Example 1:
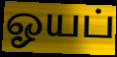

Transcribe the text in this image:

ஓயப்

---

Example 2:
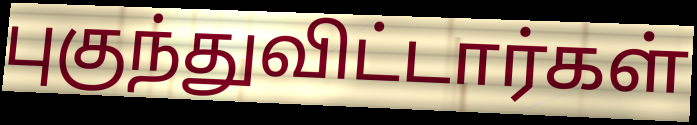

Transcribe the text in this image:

புகுந்துவிட்டார்கள்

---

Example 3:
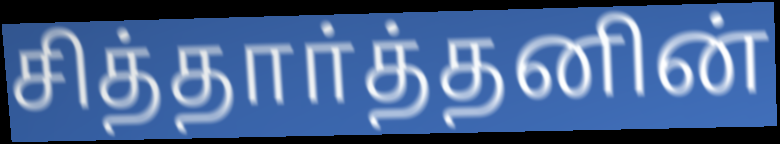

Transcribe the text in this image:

சித்தார்த்தனின்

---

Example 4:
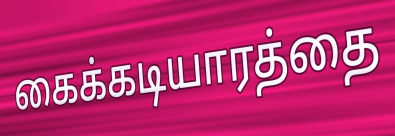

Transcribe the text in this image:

கைக்கடியாரத்தை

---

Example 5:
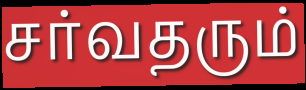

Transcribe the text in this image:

சர்வதரும்